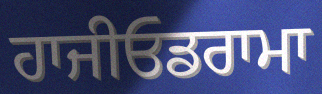
ਹਾਜੀਓਡਰਾਮਾ